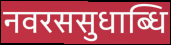
नवरससुधाब्धि